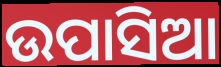
ଉପାସିଆ